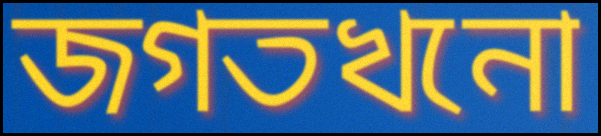
জগতখনো